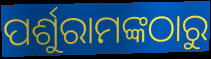
ପର୍ଶୁରାମଙ୍କଠାରୁ